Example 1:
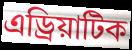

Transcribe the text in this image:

এড্ৰিয়াটিক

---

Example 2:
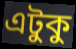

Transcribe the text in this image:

এটুকু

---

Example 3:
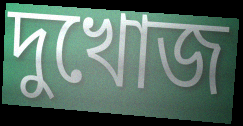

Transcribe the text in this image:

দুখোজ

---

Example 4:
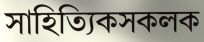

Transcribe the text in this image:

সাহিত্যিকসকলক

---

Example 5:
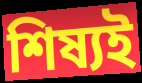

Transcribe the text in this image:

শিষ্যই